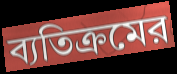
ব্যতিক্রমের